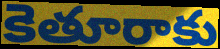
కెతూరాకు